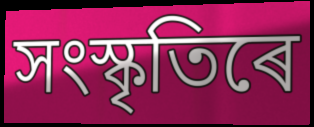
সংস্কৃতিৰে